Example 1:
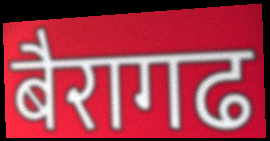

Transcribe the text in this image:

बैरागढ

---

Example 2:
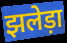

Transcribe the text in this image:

झलेड़ा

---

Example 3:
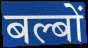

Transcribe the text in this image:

बल्बों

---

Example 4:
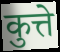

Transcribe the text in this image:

कुत्ते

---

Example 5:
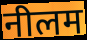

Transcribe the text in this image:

नीलम